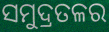
ସମୁଦ୍ରତଳର